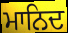
ਮਾਨਿਦ